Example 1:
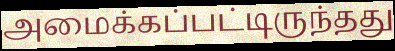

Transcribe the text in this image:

அமைக்கப்பட்டிருந்தது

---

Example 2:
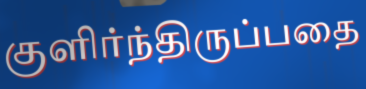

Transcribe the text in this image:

குளிர்ந்திருப்பதை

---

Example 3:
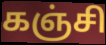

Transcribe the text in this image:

கஞ்சி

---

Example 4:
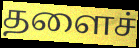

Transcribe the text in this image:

தளைச்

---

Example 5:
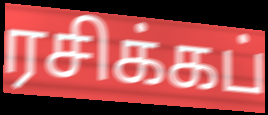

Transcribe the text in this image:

ரசிக்கப்